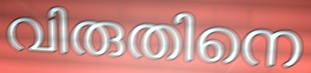
വിരുതിനെ